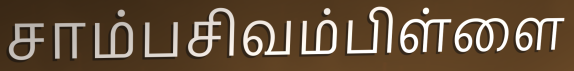
சாம்பசிவம்பிள்ளை